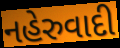
નહેરુવાદી